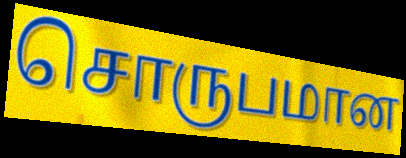
சொருபமான